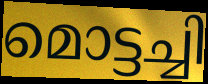
മൊട്ടച്ചി